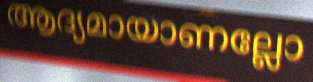
ആദ്യമായാണല്ലോ